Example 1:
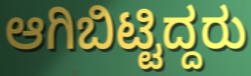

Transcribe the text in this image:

ಆಗಿಬಿಟ್ಟಿದ್ದರು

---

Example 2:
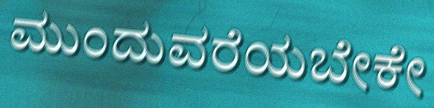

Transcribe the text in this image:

ಮುಂದುವರೆಯಬೇಕೇ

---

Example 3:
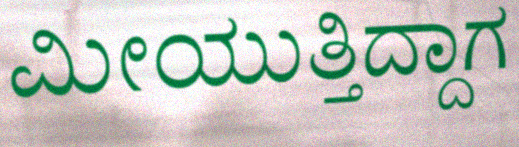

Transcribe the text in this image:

ಮೀಯುತ್ತಿದ್ದಾಗ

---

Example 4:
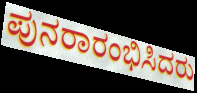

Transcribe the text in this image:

ಪುನರಾರಂಭಿಸಿದರು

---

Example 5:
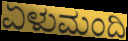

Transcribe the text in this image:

ಏಳುಮಂದಿ